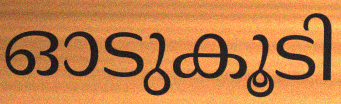
ഓടുകൂടി